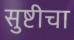
सुष्टीचा